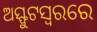
ଅସ୍ଫୁଟସ୍ୱରରେ